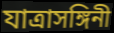
যাত্রাসঙ্গিনী